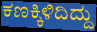
ಕಣಕ್ಕಿಳಿದಿದ್ದು